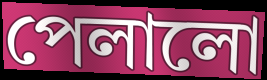
পেলালো